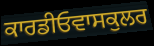
ਕਾਰਡੀਓਵਾਸਕੁਲਰ